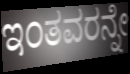
ಇಂತವರನ್ನೇ